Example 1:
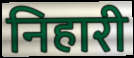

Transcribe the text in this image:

निहारी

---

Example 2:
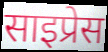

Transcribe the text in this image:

साइप्रेस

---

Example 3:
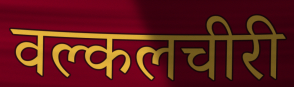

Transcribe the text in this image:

वल्कलचीरी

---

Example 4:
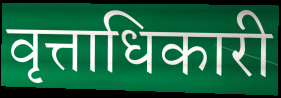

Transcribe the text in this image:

वृत्ताधिकारी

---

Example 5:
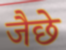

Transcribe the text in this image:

जैछे